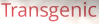
Transgenic